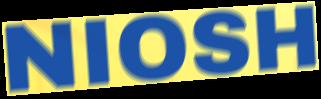
NIOSH